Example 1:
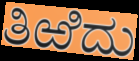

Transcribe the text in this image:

ತಿಱಿದು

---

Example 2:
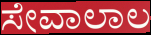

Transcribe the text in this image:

ಸೇವಾಲಾಲ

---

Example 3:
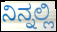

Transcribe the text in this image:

ನಿನ್ನಲ್ಲಿ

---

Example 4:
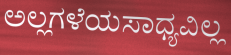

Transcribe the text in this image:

ಅಲ್ಲಗಳೆಯಸಾಧ್ಯವಿಲ್ಲ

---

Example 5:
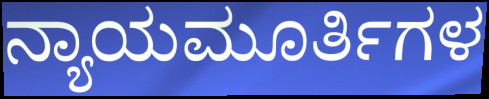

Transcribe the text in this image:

ನ್ಯಾಯಮೂರ್ತಿಗಳ